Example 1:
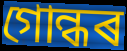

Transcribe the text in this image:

গোন্ধৰ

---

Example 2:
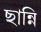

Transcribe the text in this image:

ছান্নি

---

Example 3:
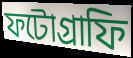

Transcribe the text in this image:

ফটোগ্ৰাফি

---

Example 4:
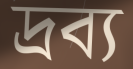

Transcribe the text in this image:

দ্ৰব্য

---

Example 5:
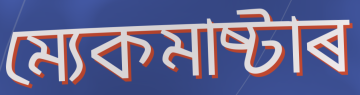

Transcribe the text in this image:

ম্যেকমাষ্টাৰ